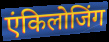
एंकिलोजिंग